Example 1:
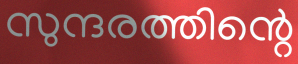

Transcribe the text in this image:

സുന്ദരത്തിന്റെ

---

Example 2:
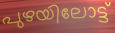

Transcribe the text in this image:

പുഴയിലോട്ട്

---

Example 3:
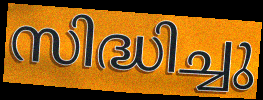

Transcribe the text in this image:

സിദ്ധിച്ചു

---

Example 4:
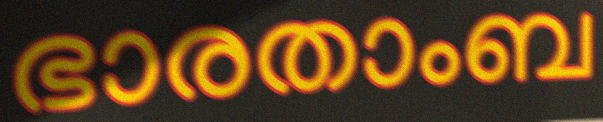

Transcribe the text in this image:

ഭാരതാംബ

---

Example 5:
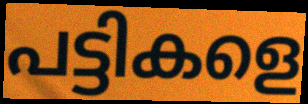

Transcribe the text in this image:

പട്ടികളെ